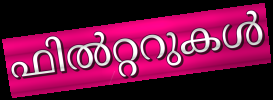
ഫിൽറ്ററുകൾ